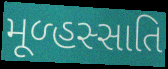
મૂળ્હસ્સાતિ